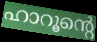
ഹാറൂന്റെ